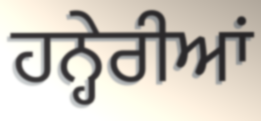
ਹਨ੍ਹੇਰੀਆਂ